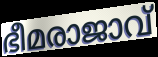
ഭീമരാജാവ്